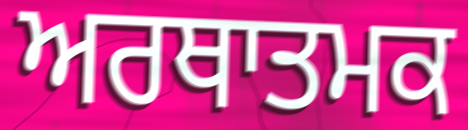
ਅਰਥਾਤਮਕ